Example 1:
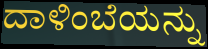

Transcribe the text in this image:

ದಾಳಿಂಬೆಯನ್ನು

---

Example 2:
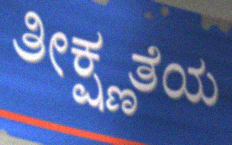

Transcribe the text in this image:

ತೀಕ್ಷ್ಣತೆಯ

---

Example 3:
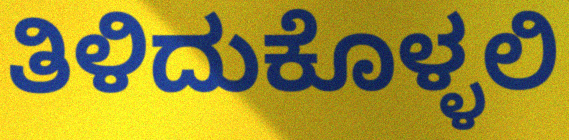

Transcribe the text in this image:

ತಿಳಿದುಕೊಳ್ಳಲಿ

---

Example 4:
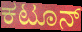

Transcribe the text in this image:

ಕಟೂನ್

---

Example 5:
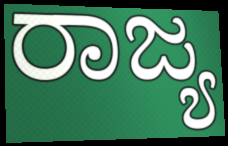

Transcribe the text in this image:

ರಾಜ್ಯ